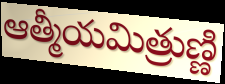
ఆత్మీయమిత్రుణ్ణి